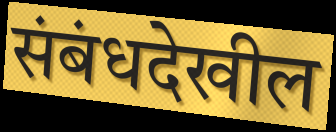
संबंधदेखील